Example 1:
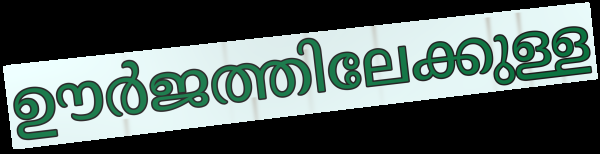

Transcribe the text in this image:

ഊർജത്തിലേക്കുള്ള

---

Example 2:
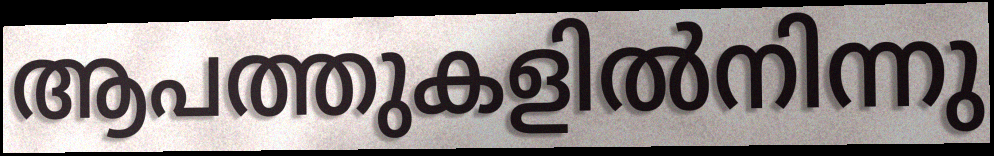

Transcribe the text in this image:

ആപത്തുകളിൽനിന്നു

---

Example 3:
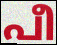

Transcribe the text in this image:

പീ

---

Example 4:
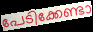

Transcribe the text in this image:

പേടിക്കേണ്ടാ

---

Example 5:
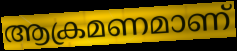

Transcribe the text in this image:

ആക്രമണമാണ്